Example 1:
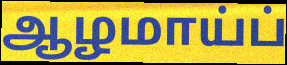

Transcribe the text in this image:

ஆழமாய்ப்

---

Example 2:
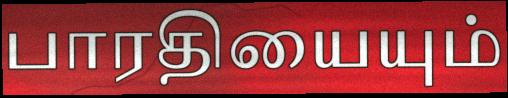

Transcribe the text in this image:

பாரதியையும்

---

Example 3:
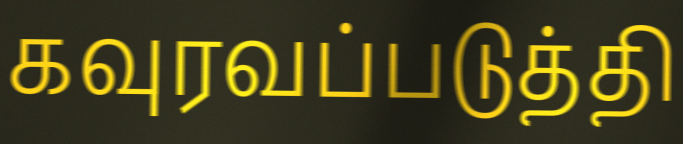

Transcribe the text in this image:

கவுரவப்படுத்தி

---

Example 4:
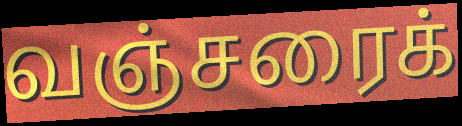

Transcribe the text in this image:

வஞ்சரைக்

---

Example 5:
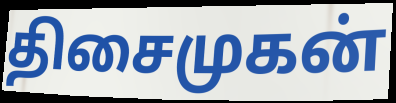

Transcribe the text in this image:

திசைமுகன்